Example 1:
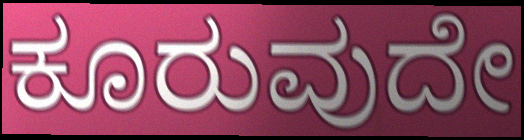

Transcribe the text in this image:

ಕೂರುವುದೇ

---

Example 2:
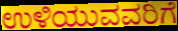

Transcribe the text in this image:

ಉಳಿಯುವವರಿಗೆ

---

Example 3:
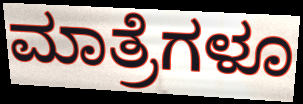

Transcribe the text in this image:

ಮಾತ್ರೆಗಳೂ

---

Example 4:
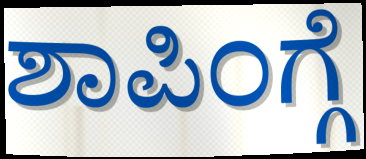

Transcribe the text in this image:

ಶಾಪಿಂಗ್ಗೆ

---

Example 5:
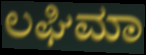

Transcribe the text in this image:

ಲಘಿಮಾ